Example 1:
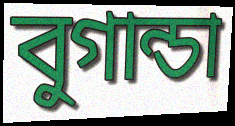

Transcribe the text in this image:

বুগান্ডা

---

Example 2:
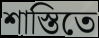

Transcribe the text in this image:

শাস্তিতে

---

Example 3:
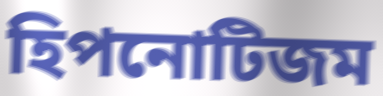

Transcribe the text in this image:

হিপনোটিজম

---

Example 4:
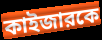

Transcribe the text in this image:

কাইজারকে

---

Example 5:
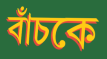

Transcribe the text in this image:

বাঁচকে